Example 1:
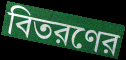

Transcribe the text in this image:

বিতরণের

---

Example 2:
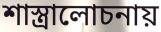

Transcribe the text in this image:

শাস্ত্রালোচনায়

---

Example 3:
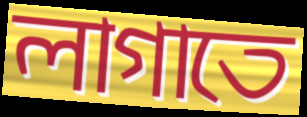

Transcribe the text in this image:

লাগাতে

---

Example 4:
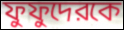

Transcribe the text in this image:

ফুফুদেরকে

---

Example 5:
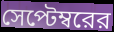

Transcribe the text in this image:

সেপ্টেম্বরের